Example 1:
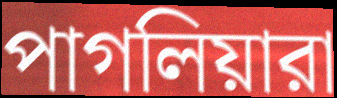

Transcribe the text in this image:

পাগলিয়ারা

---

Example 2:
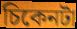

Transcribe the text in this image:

চিকেনটা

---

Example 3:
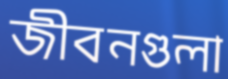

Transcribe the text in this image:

জীবনগুলা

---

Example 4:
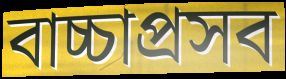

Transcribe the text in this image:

বাচ্চাপ্রসব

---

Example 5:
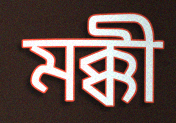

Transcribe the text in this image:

মক্কী